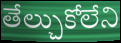
తేల్చుకోలేని